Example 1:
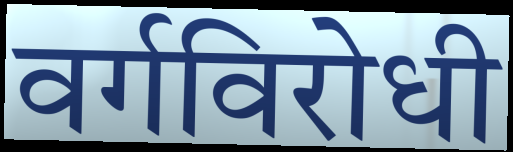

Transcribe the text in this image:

वर्गविरोधी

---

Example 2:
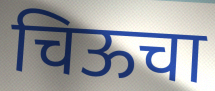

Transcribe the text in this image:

चिऊचा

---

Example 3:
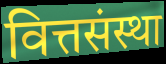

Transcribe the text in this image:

वित्तसंस्था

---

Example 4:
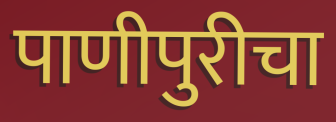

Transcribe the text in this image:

पाणीपुरीचा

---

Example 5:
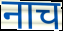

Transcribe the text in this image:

नाच